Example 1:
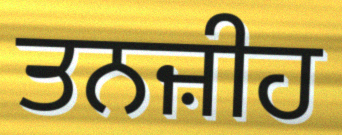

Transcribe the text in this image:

ਤਨਜ਼ੀਹ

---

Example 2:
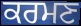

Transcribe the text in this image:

ਕਰਮਣ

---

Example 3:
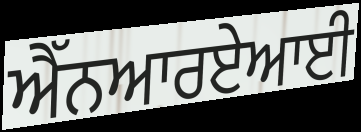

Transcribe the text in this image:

ਐੱਨਆਰਏਆਈ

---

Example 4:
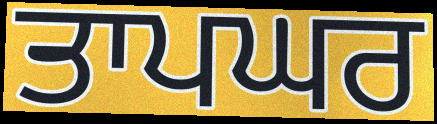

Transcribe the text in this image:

ਤਾਪਘਰ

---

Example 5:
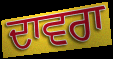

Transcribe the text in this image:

ਦਾਵਰਾ